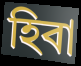
হিবা